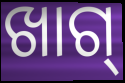
ଖାଗ୍